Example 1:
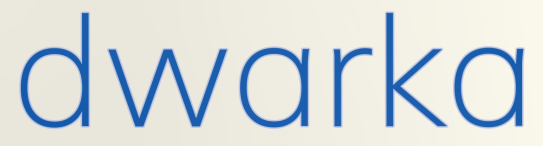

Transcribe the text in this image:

dwarka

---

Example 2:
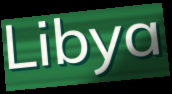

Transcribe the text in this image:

Libya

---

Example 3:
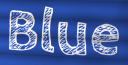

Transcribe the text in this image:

Blue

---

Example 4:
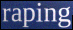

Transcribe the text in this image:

raping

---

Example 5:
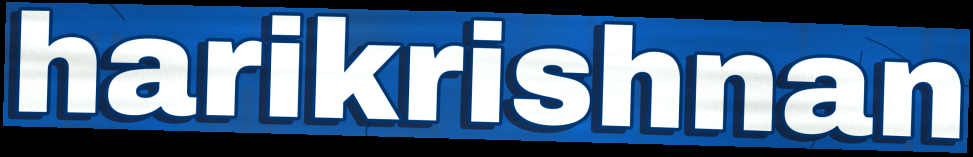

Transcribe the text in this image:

harikrishnan